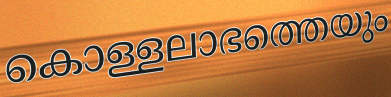
കൊള്ളലാഭത്തെയും